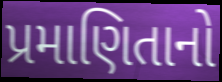
પ્રમાણિતાનો